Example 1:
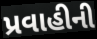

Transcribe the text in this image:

પ્રવાહીની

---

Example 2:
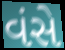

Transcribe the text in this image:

વંસે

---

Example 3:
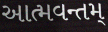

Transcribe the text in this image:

આત્મવન્તમ્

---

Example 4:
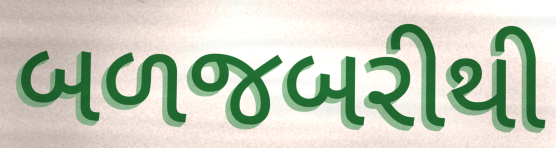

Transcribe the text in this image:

બળજબરીથી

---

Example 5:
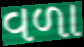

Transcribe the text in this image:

વળા